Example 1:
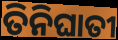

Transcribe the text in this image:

ତିନିଘାତୀ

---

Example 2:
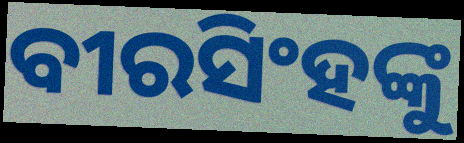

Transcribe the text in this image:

ବୀରସିଂହଙ୍କୁ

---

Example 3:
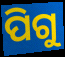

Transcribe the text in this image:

ପିଗୁ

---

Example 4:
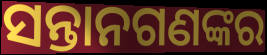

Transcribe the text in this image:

ସନ୍ତାନଗଣଙ୍କର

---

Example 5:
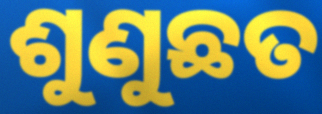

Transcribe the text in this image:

ଶୁଣୁଛତ